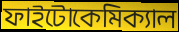
ফাইটোকেমিক্যাল